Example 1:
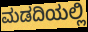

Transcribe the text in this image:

ಮಡದಿಯಲ್ಲಿ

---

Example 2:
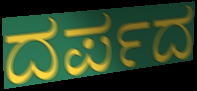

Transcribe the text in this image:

ದರ್ಪದ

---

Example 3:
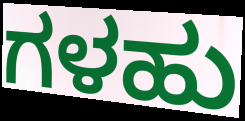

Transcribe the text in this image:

ಗಳಹು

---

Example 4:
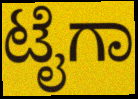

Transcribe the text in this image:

ಟೈಗಾ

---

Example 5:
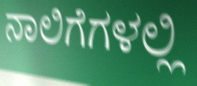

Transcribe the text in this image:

ನಾಲಿಗೆಗಳಲ್ಲಿ